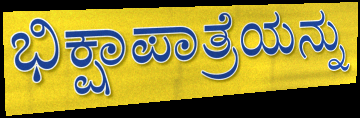
ಭಿಕ್ಷಾಪಾತ್ರೆಯನ್ನು